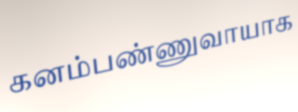
கனம்பண்ணுவாயாக